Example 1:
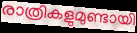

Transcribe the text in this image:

രാത്രികളുമുണ്ടായി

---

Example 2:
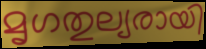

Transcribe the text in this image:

മൃഗതുല്യരായി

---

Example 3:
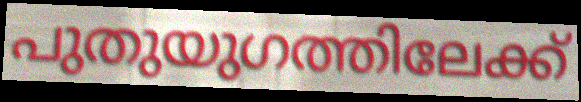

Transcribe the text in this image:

പുതുയുഗത്തിലേക്ക്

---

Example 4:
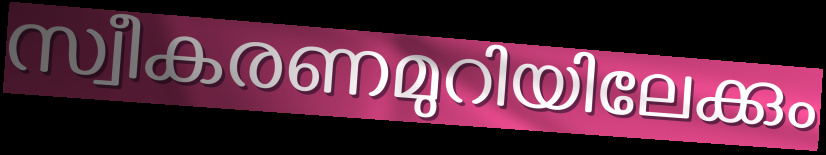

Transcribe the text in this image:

സ്വീകരണമുറിയിലേക്കും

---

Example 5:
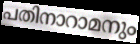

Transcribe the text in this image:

പതിനാറാമനും